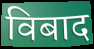
विबाद